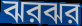
ঝরঝর